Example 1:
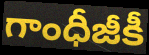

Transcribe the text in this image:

గాంధీజీకీ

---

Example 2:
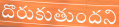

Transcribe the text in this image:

దొరుకుతుందని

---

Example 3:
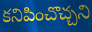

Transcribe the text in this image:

కనిపించొచ్చని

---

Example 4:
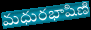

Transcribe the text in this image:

మధురభాషిణి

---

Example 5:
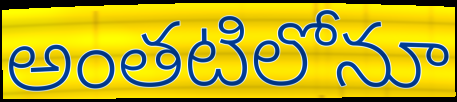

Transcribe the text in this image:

అంతటిలోనూ